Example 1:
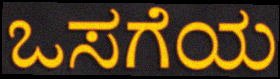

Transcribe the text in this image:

ಒಸಗೆಯ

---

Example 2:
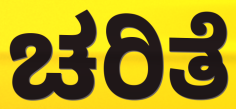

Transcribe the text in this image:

ಚರಿತೆ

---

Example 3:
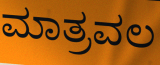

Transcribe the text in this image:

ಮಾತ್ರವಲ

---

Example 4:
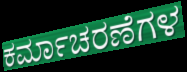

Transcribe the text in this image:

ಕರ್ಮಾಚರಣೆಗಳ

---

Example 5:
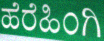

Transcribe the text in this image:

ಹೆರೆಹಿಂಗಿ